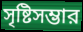
সৃষ্টিসম্ভার